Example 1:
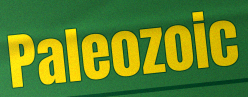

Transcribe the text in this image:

Paleozoic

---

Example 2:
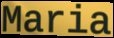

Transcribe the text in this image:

Maria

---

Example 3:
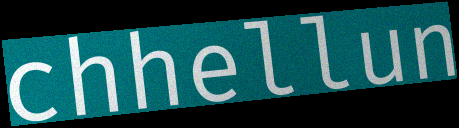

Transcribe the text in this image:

chhellun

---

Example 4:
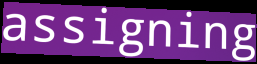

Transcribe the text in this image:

assigning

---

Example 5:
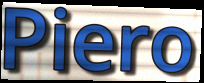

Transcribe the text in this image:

Piero